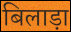
बिलाड़ा